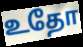
உதோ